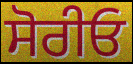
ਸੋਰੀਓ